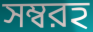
সম্বরহ